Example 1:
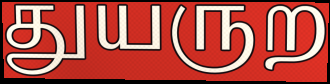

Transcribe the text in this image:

துயருற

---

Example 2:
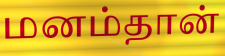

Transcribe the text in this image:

மனம்தான்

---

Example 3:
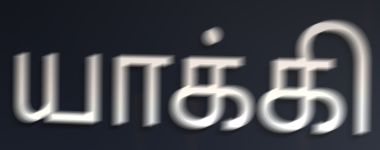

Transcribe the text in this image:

யாக்கி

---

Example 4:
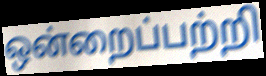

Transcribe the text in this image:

ஒன்றைப்பற்றி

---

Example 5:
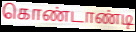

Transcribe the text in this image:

கொண்டாண்டி